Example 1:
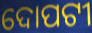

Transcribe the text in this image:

ଦୋପଟୀ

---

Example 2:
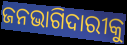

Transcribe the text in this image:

ଜନଭାଗିଦାରୀକୁ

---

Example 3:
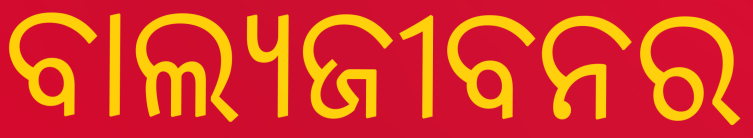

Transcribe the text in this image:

ବାଲ୍ୟଜୀବନର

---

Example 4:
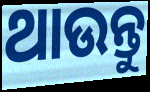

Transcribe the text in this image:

ଥାଉନ୍ତୁ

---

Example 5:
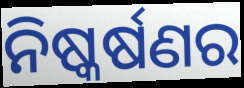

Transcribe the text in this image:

ନିଷ୍କର୍ଷଣର